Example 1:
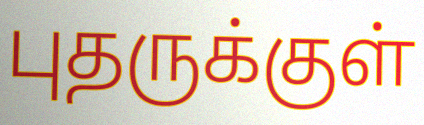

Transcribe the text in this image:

புதருக்குள்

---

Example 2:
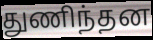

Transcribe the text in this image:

துணிந்தன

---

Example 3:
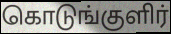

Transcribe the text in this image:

கொடுங்குளிர்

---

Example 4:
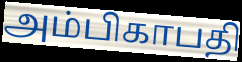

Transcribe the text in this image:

அம்பிகாபதி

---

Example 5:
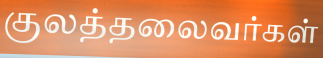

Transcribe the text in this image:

குலத்தலைவர்கள்